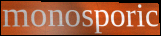
monosporic